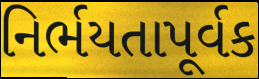
નિર્ભયતાપૂર્વક